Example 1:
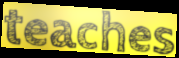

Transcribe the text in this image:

teaches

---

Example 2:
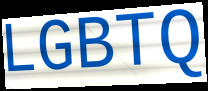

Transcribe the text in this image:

LGBTQ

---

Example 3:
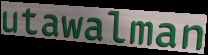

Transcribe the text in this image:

utawalman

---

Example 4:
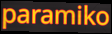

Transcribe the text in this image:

paramiko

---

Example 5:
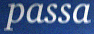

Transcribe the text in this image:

passa